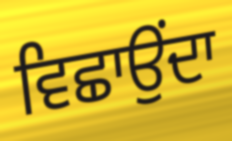
ਵਿਛਾਉਂਦਾ